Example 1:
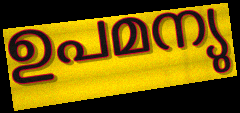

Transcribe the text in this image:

ഉപമന്യു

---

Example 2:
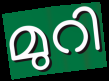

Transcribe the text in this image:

മുറി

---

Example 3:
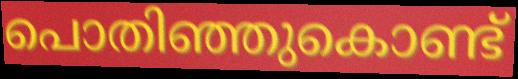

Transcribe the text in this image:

പൊതിഞ്ഞുകൊണ്ട്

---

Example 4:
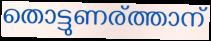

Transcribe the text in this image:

തൊട്ടുണര്ത്താന്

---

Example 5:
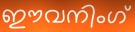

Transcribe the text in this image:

ഈവനിംഗ്